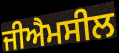
ਜੀਐਮਸੀਲ